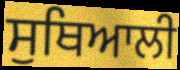
ਸੁਥਿਆਲੀ